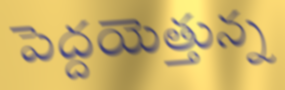
పెద్దయెత్తున్న